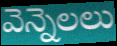
వెన్నెలలు